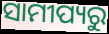
ସାମୀପ୍ୟରୁ